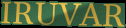
IRUVAR